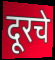
दूरचे